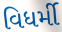
વિધર્મી